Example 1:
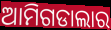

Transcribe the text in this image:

ଆମିଗଡାଲାର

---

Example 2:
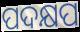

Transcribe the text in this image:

ପଦକ୍ଷପ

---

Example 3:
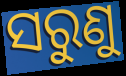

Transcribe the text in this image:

ସରୁଣୁ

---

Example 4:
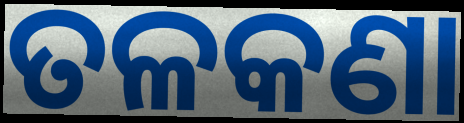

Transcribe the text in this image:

ତଳକଣା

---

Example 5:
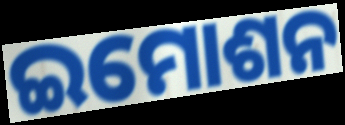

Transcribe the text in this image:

ଇମୋଶନ